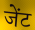
जेंट